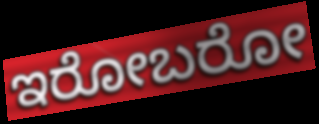
ಇರೋಬರೋ